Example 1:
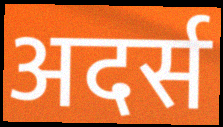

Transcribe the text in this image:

अदर्स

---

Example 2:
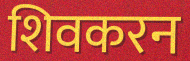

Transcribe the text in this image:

शिवकरन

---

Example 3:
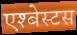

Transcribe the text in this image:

एश्बेस्टस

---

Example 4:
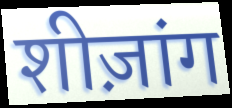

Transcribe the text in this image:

शीज़ांग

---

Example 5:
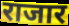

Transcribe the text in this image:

राजार